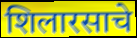
शिलारसाचे